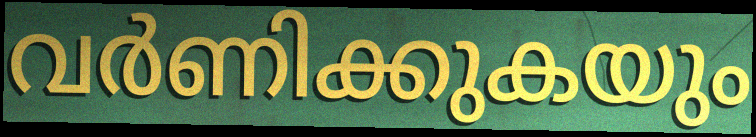
വർണിക്കുകയും